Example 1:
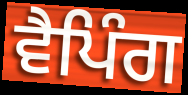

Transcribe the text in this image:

ਵੈਪਿੰਗ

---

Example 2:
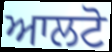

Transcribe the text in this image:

ਆਲਟੋ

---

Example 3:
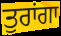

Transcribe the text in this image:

ਤੁਰਾਂਗਾ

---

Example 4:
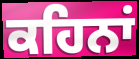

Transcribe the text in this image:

ਕਹਿਨਾਂ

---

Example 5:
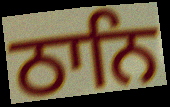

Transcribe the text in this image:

ਠਾਨਿ